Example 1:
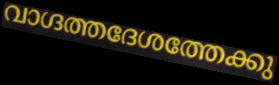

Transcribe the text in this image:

വാഗ്ദത്തദേശത്തേക്കു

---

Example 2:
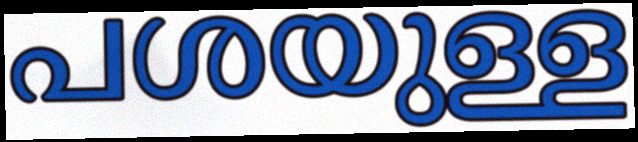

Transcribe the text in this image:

പശയുള്ള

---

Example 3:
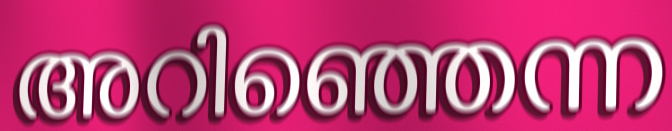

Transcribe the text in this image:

അറിഞ്ഞെന്ന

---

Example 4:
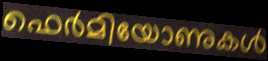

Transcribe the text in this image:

ഫെർമിയോണുകൾ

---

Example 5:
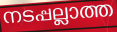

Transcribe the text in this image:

നടപ്പല്ലാത്ത